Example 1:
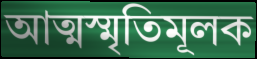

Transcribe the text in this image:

আত্মস্মৃতিমূলক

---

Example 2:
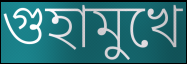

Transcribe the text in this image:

গুহামুখে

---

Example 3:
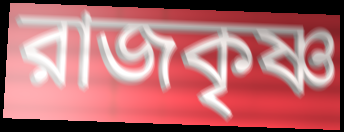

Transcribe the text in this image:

রাজকৃষ্ণ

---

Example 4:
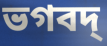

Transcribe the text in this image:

ভগবদ্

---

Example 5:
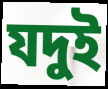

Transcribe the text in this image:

যদুই